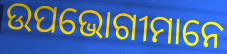
ଉପଭୋଗୀମାନେ